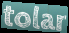
tolar